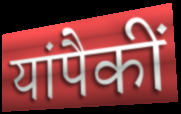
यांपैकीं